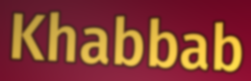
Khabbab